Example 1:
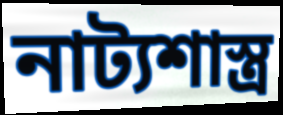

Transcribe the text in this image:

নাট্যশাস্ত্ৰ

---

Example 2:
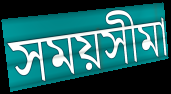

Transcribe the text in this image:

সময়সীমা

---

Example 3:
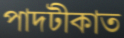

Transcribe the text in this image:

পাদটীকাত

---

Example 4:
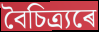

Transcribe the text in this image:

বৈচিত্ৰ্যৰে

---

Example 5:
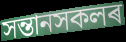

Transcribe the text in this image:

সন্তানসকলৰ